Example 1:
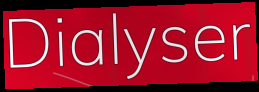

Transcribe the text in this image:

Dialyser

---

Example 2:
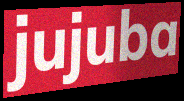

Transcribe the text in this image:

jujuba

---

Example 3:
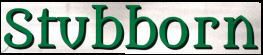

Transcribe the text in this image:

Stubborn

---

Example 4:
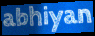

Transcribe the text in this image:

abhiyan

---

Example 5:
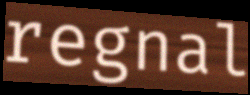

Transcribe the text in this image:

regnal